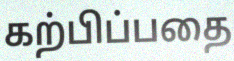
கற்பிப்பதை